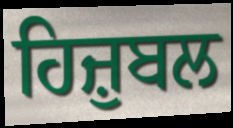
ਹਿਜ਼ੁਬਲ